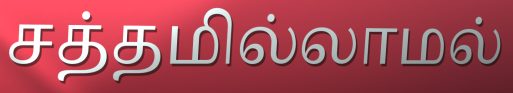
சத்தமில்லாமல்